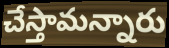
చేస్తామన్నారు